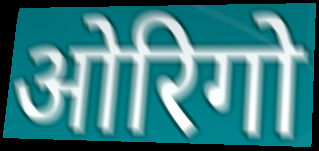
ओरिगो